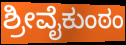
ಶ್ರೀವೈಕುಂಠಂ